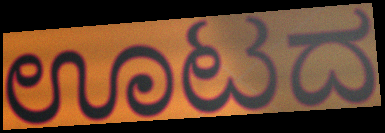
ಊಟದ